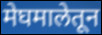
मेघमालेतून